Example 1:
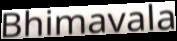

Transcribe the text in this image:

Bhimavala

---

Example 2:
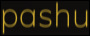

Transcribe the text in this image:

pashu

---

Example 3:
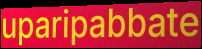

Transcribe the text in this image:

uparipabbate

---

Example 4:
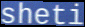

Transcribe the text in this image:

sheti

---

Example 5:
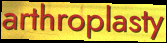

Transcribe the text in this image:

arthroplasty